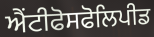
ਐਂਟੀਫੋਸਫੋਲਿਪੀਡ